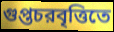
গুপ্তচরবৃত্তিতে